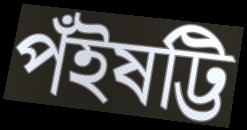
পঁইষট্টি